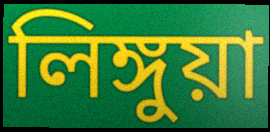
লিঙ্গুয়া